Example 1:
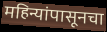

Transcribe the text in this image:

महिन्यांपासूनचा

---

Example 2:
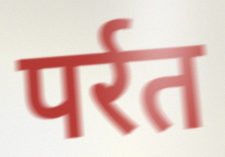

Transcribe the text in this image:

पर्रत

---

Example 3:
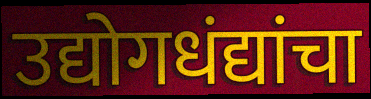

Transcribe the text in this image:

उद्योगधंद्यांचा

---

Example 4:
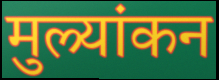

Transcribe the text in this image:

मुल्यांकन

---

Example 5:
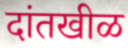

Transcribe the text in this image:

दांतखीळ